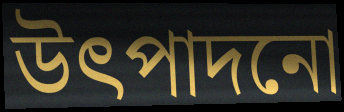
উৎপাদনো